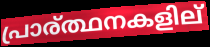
പ്രാര്ത്ഥനകളില്